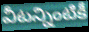
వీటన్నింటికీ